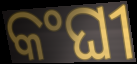
କଂଘୀ